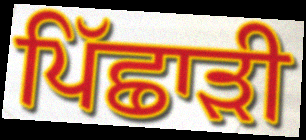
ਪਿੱਛਾੜੀ